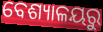
ବେଶ୍ୟାଳୟରୁ